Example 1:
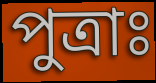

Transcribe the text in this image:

পুত্রাঃ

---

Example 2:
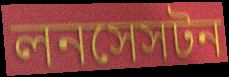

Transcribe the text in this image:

লনসেসটন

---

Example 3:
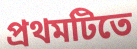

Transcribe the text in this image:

প্রথমটিতে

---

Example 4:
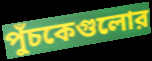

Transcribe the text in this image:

পুঁচকেগুলোর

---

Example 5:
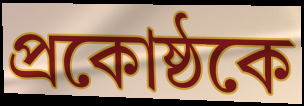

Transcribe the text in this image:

প্রকোষ্ঠকে